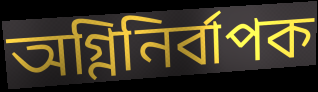
অগ্নিনিৰ্বাপক